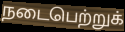
நடைபெற்றுக்